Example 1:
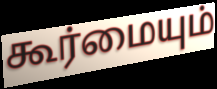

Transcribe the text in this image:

கூர்மையும்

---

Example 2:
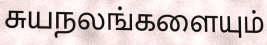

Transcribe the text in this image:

சுயநலங்களையும்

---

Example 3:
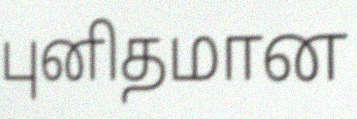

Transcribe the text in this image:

புனிதமான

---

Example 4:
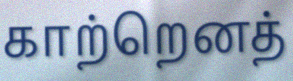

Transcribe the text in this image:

காற்றெனத்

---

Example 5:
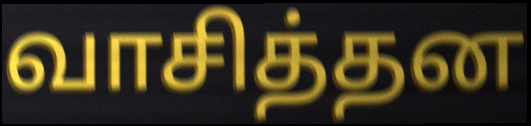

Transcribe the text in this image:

வாசித்தன